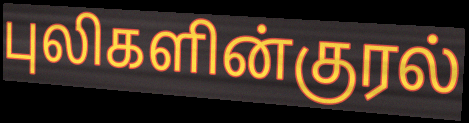
புலிகளின்குரல்